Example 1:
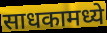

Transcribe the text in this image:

साधकामध्ये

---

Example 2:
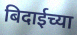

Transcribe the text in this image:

बिदाईच्या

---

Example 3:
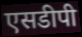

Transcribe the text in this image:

एसडीपी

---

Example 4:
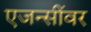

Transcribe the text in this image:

एजन्सींवर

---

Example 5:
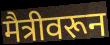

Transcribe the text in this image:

मैत्रीवरून